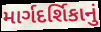
માર્ગદર્શિકાનું